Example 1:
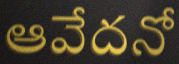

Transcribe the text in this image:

ఆవేదనో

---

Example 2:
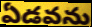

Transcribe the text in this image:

ఏడవను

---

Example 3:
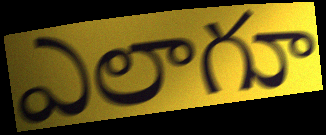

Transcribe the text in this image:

ఎలాగూ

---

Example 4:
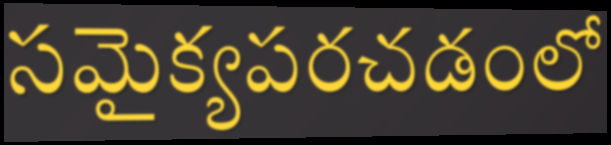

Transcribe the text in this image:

సమైక్యపరచడంలో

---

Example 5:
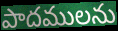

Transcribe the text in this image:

పాదములను